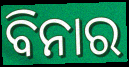
ବିନାର